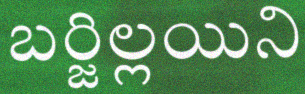
బర్జిల్లయిని